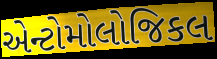
એન્ટોમોલોજિકલ